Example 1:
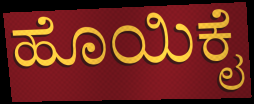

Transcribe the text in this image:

ಹೊಯಿಕೈ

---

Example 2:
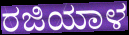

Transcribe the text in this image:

ರಜಿಯಾಳ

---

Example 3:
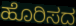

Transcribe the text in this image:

ಹೊರಿಸದ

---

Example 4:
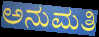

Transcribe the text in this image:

ಅನುಮತಿ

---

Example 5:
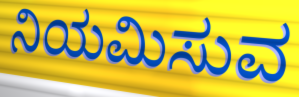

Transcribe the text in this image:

ನಿಯಮಿಸುವ